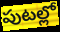
పుటల్లో